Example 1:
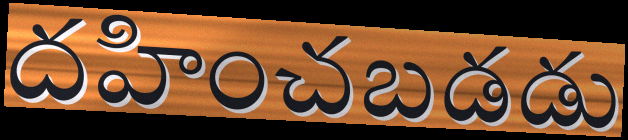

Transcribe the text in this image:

దహించబడడు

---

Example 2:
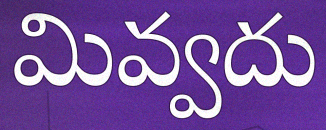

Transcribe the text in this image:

మివ్వదు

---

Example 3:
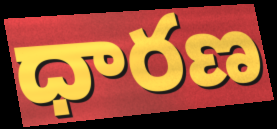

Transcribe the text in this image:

ధారణ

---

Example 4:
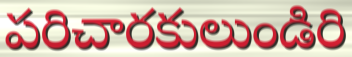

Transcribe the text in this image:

పరిచారకులుండిరి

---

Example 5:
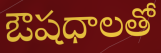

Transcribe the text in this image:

ఔషధాలతో